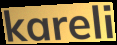
kareli